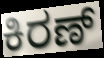
ಕಿರಣ್